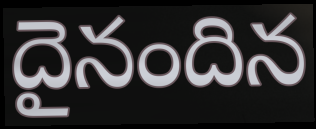
దైనందిన